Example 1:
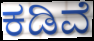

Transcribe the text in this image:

ಕಡಿವೆ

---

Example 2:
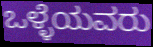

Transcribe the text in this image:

ಒಳ್ಳೆಯವರು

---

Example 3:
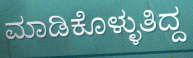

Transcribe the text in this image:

ಮಾಡಿಕೊಳ್ಳುತಿದ್ದ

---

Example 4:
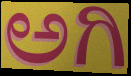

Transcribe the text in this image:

ಅಗಿ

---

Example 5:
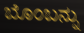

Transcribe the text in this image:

ಬೊಂಬನ್ನು